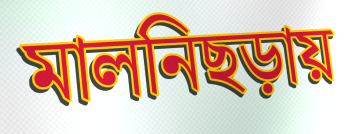
মালনিছড়ায়